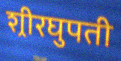
श्रीरघुपती